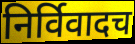
निर्विवादच